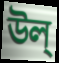
উল্